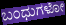
ಬಂಧುಗಳೋ